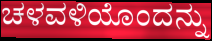
ಚಳವಳಿಯೊಂದನ್ನು